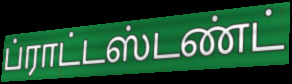
ப்ராட்டஸ்டண்ட்